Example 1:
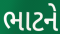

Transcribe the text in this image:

ભાટને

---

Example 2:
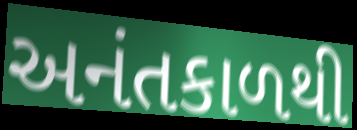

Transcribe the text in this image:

અનંતકાળથી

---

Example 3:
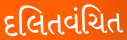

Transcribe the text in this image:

દલિતવંચિત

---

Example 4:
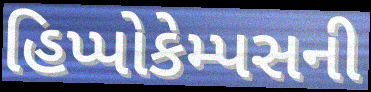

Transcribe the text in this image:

હિપ્પોકેમ્પસની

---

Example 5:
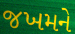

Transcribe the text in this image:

જખમને